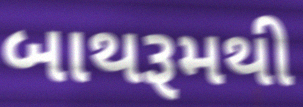
બાથરૂમથી